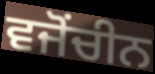
ਵਜੋਂਚੀਨ